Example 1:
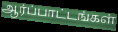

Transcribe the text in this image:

ஆர்ப்பாட்டங்கள்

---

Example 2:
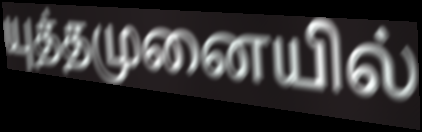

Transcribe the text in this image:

யுத்தமுனையில்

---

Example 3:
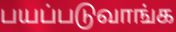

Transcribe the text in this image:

பயப்படுவாங்க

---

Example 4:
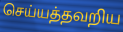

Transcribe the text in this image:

செய்யத்தவறிய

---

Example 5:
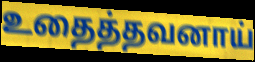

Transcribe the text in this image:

உதைத்தவனாய்